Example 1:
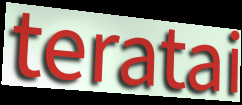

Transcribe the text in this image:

teratai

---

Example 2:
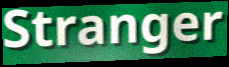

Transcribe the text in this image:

Stranger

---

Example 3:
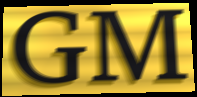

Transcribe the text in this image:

GM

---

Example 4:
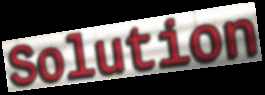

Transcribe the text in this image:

Solution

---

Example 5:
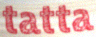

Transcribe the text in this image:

tatta